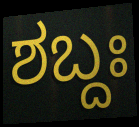
ಶಬ್ದಃ